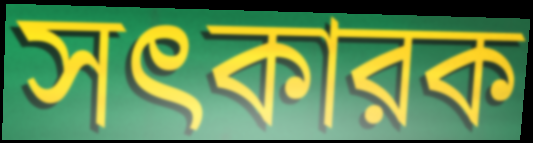
সৎকারক